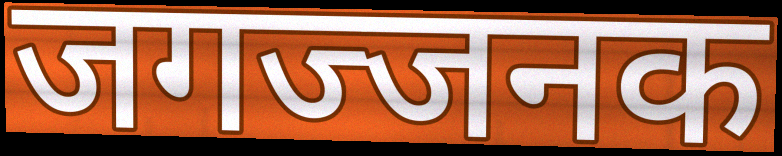
जगज्जनक